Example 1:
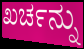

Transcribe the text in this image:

ಖರ್ಚನ್ನು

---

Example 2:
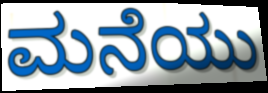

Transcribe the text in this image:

ಮನೆಯು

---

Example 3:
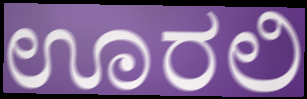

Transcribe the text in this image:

ಊರಲಿ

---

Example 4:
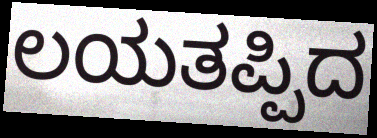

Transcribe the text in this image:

ಲಯತಪ್ಪಿದ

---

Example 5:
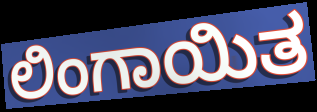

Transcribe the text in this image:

ಲಿಂಗಾಯಿತ